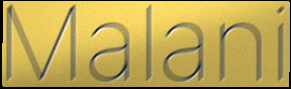
Malani